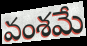
వంశమే